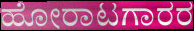
ಹೋರಾಟಗಾರರ